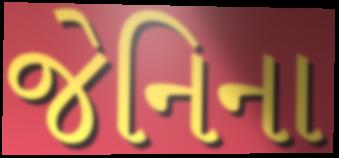
જેનિના